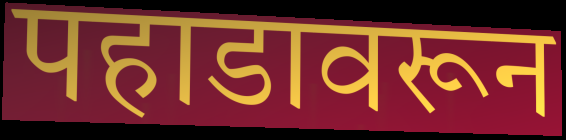
पहाडावरून